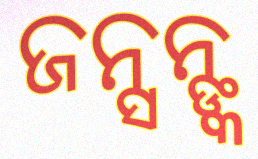
ଜନ୍ସନ୍ଙ୍କ